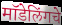
मॉडेलिंगचे